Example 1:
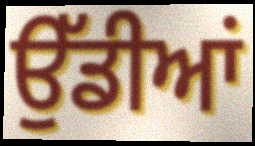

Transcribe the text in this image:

ਉੱਡੀਆਂ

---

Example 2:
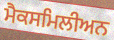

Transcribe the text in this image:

ਮੈਕਸਮਿਲੀਅਨ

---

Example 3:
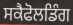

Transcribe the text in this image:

ਸਕੈਫੋਲਡਿੰਗ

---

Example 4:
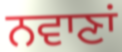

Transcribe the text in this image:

ਨਵਾਣਾਂ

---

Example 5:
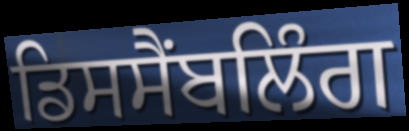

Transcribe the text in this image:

ਡਿਸਸੈਂਬਲਿੰਗ